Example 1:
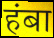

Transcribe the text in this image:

हंबा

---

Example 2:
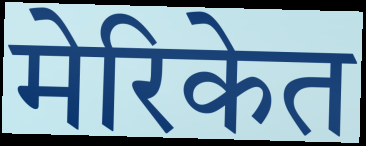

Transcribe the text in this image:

मेरिकेत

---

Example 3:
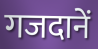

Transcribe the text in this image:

गजदानें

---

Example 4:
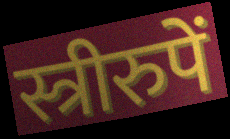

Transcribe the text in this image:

स्त्रीरुपें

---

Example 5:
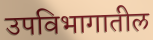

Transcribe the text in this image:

उपविभागातील